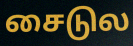
சைடுல